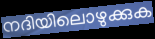
നദിയിലൊഴുക്കുക